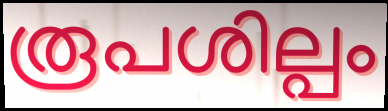
രൂപശില്പം